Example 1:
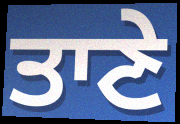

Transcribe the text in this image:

ਤਾਣੇ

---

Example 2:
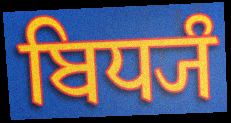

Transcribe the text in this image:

ਬਿਧ੍ਯੰ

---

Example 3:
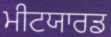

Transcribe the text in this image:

ਮੀਟਯਾਰਡ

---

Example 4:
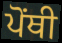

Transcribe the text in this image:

ਪੋਂਥੀ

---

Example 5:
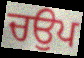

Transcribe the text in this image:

ਚਉਪ